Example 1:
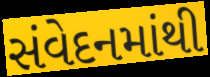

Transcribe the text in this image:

સંવેદનમાંથી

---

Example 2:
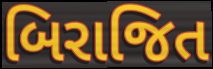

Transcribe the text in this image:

બિરાજિત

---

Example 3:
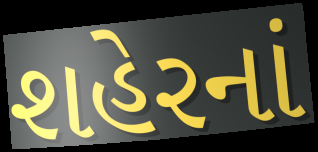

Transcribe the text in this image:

શહેરનાં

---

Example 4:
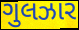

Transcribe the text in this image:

ગુલઝાર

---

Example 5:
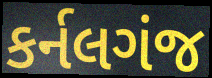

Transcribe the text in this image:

કર્નલગંજ